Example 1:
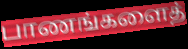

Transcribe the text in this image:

பாணங்களைத்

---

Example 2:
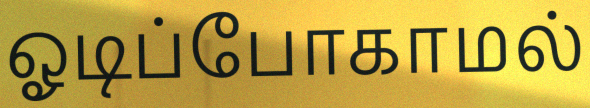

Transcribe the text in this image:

ஓடிப்போகாமல்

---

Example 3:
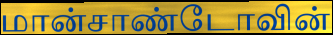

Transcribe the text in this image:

மான்சாண்டோவின்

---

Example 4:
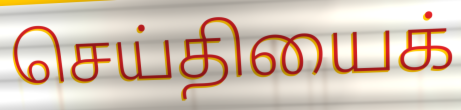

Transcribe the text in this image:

செய்தியைக்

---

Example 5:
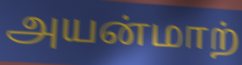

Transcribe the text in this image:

அயன்மாற்